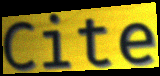
Cite